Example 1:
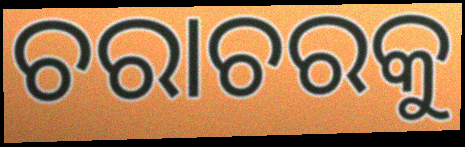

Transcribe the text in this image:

ଚରାଚରକୁ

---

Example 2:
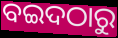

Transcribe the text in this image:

ବଇଦଠାରୁ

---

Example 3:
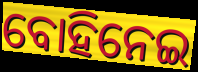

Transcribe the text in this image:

ବୋହିନେଇ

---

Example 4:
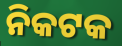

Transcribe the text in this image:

ନିକଟକ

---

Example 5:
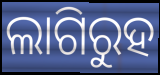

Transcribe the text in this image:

ଲାଗିରୁହ